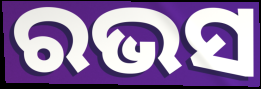
ରଭସ